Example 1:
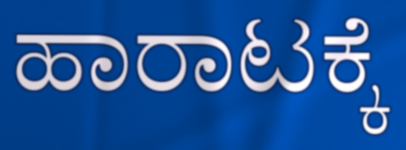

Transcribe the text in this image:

ಹಾರಾಟಕ್ಕೆ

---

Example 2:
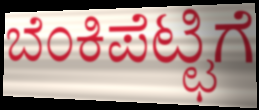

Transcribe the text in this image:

ಬೆಂಕಿಪೆಟ್ಟಿಗೆ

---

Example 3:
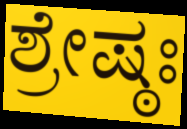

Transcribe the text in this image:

ಶ್ರೇಷ್ಠಃ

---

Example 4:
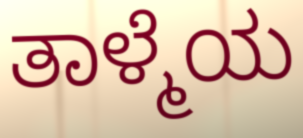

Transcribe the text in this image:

ತಾಳ್ಮೆಯ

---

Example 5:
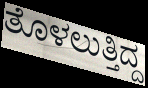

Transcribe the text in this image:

ತೊಳಲುತ್ತಿದ್ದ